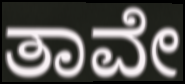
ತಾವೇ